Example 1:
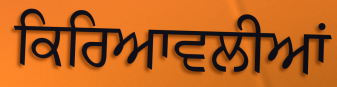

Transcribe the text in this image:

ਕਿਰਿਆਵਲੀਆਂ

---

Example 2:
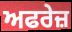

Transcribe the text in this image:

ਅਫਰੇਜ਼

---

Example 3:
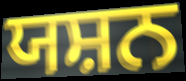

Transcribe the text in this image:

ਯਸ਼ਨ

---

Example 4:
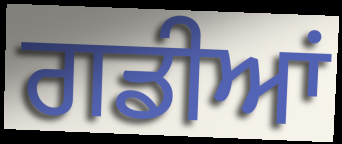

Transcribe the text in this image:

ਗਡੀਆਂ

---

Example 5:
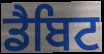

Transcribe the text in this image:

ਡੈਬਿਟ